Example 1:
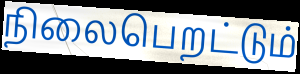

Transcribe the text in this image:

நிலைபெறட்டும்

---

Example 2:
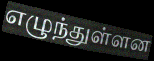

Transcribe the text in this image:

எழுந்துள்ளன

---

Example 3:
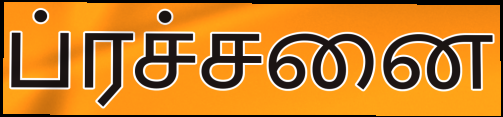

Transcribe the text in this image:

ப்ரச்சனை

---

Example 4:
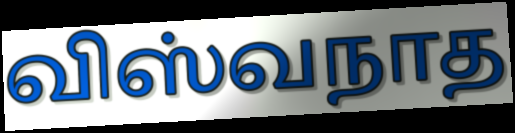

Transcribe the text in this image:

விஸ்வநாத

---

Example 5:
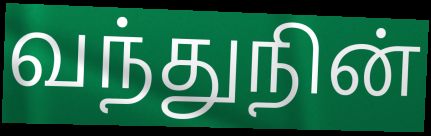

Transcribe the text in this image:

வந்துநின்